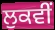
ਲੁਕਵੀਂ